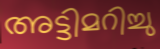
അട്ടിമറിച്ചു